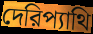
দেরিপ্যাথি